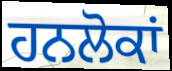
ਹਨਲੋਕਾਂ